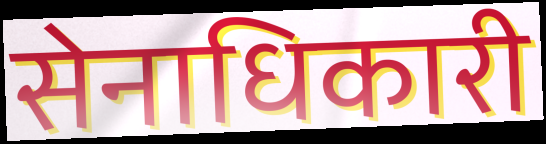
सेनाधिकारी